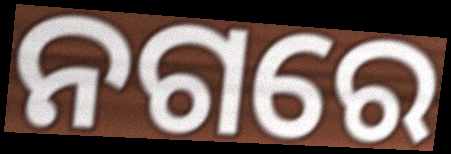
ନଗରେ